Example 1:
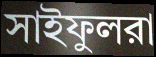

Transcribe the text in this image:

সাইফুলরা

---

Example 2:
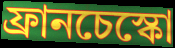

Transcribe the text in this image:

ফ্রানচেস্কো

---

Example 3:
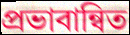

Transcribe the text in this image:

প্রভাবান্বিত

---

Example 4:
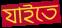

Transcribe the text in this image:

যাইতে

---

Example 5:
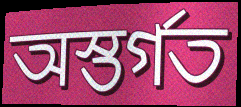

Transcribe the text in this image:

অস্তর্গত